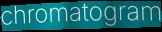
chromatogram